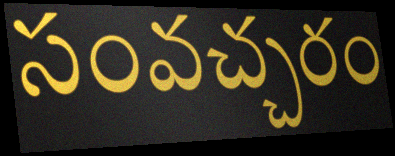
సంవచ్చరం